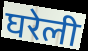
घरेली